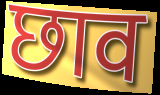
छाव